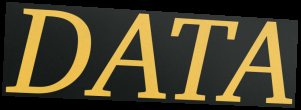
DATA